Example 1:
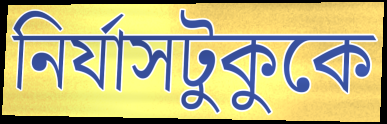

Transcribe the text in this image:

নির্যাসটুকুকে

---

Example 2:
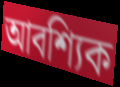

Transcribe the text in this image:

আবশ্যিক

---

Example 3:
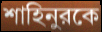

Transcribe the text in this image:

শাহিনুরকে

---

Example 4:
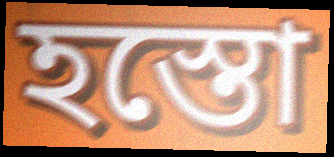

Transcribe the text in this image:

হস্তো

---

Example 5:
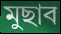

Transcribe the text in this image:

মুছাব